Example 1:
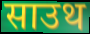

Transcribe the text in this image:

साउथ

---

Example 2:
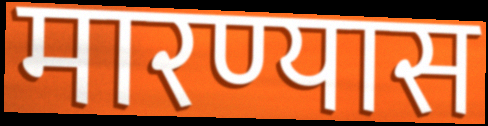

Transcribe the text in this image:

मारण्यास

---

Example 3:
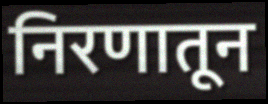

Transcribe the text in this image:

निरणातून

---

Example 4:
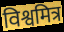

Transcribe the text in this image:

विश्वमित्र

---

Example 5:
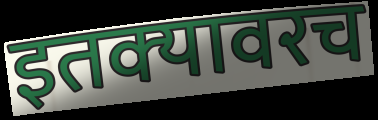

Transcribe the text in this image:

इतक्यावरच